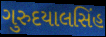
ગુરુદયાલસિંહ